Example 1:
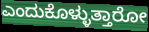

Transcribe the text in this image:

ಎಂದುಕೊಳ್ಳುತ್ತಾರೋ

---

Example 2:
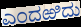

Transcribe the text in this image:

ಎಂದಱಿದು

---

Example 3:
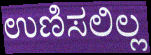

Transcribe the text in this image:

ಉಣಿಸಲಿಲ್ಲ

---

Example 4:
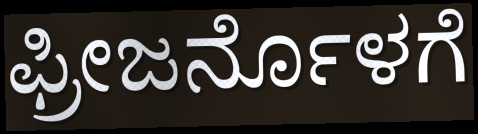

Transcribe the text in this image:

ಫ್ರೀಜರ್ನೊಳಗೆ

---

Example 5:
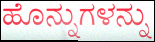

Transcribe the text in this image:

ಹೊನ್ನುಗಳನ್ನು